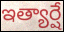
ఇత్యార్షే